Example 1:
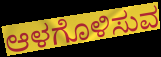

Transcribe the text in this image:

ಆಳಗೊಳಿಸುವ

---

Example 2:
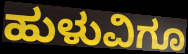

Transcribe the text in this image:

ಹುಳುವಿಗೂ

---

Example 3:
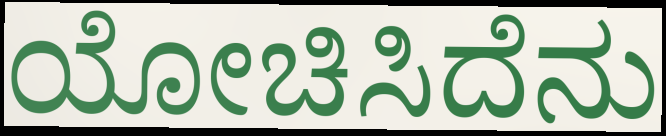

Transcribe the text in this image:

ಯೋಚಿಸಿದೆನು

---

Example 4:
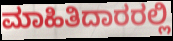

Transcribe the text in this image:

ಮಾಹಿತಿದಾರರಲ್ಲಿ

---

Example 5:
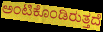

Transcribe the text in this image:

ಅಂಟಿಕೊಂಡಿರುತ್ತದೆ